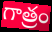
గాత్రం